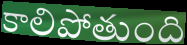
కాలిపోతుంది